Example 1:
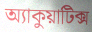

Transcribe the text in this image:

অ্যাকুয়াটিক্স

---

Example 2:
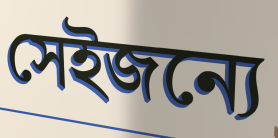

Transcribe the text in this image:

সেইজন্যে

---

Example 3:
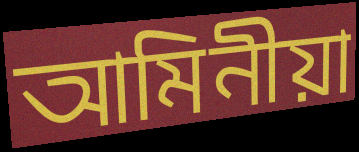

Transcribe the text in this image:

আমিনীয়া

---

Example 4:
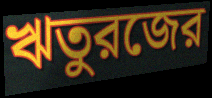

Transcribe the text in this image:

ঋতুরজের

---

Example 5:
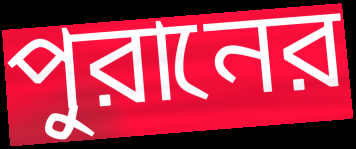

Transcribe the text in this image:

পুরানের